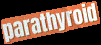
parathyroid